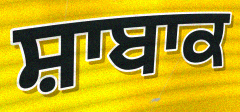
ਸ਼ਾਬਾਕ